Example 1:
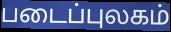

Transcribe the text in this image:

படைப்புலகம்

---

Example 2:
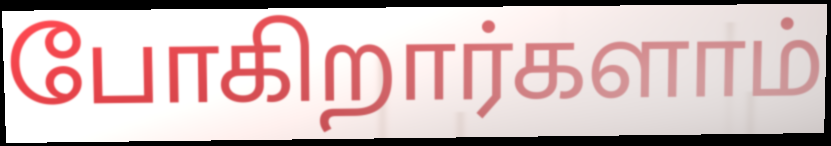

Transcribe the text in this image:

போகிறார்களாம்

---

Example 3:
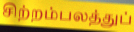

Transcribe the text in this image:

சிற்றம்பலத்துப்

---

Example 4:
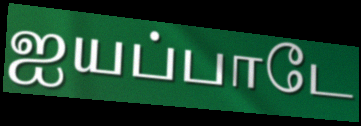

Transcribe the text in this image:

ஐயப்பாடே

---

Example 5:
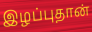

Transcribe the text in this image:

இழப்புதான்